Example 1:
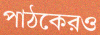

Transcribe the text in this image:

পাঠকেরও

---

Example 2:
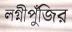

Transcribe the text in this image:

লগ্নীপুঁজির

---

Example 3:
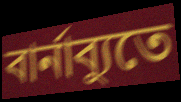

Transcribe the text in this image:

বার্নাব্যুতে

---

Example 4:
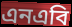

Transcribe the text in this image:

এনএবি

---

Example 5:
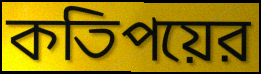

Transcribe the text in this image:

কতিপয়ের